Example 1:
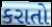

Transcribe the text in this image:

કરાતો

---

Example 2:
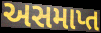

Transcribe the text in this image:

અસમાપ્ત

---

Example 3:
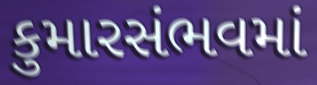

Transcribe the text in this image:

કુમારસંભવમાં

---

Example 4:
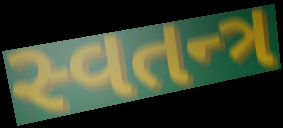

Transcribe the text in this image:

સ્વતન્ત્ર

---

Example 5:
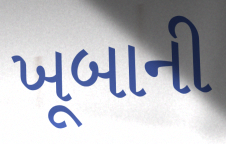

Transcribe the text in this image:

ખૂબાની